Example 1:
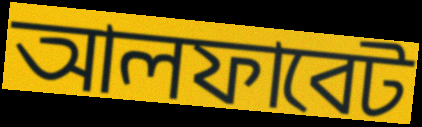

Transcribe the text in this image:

আলফাবেট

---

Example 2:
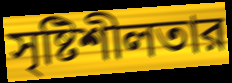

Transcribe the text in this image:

সৃষ্টিশীলতার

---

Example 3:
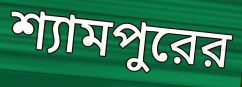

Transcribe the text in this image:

শ্যামপুরের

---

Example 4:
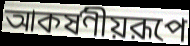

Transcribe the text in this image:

আকর্ষণীয়রূপে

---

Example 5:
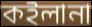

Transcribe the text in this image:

কইলানা